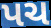
પચ